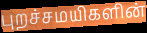
புறச்சமயிகளின்